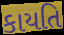
કાયતિ